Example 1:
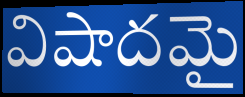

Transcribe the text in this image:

విషాదమై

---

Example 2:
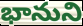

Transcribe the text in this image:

భానుని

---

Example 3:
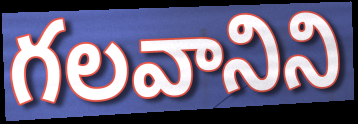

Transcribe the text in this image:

గలవానిని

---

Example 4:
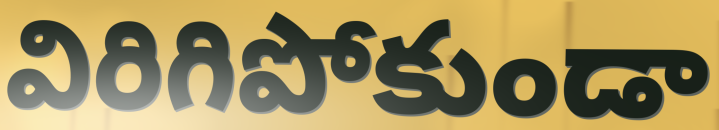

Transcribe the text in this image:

విరిగిపోకుండా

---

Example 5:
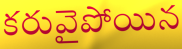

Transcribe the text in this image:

కరువైపోయిన